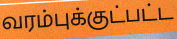
வரம்புக்குட்பட்ட